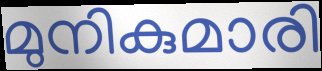
മുനികുമാരി